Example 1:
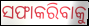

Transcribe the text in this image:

ସଫାକରିବାକୁ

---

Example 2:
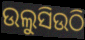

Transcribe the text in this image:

ଉଲୁସିଉଠି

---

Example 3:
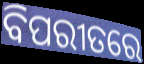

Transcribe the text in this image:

ବିପରୀତରେ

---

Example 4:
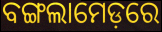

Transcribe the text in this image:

ବଙ୍ଗଲାମେଡ଼ରେ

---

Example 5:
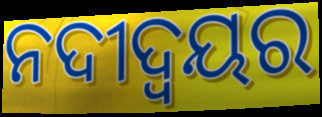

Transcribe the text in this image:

ନଦୀଦ୍ବୟର